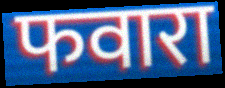
फवारा